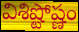
విశిష్టోష్ణం